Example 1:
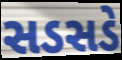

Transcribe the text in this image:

સડસડે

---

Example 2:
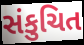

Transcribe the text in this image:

સંકુચિત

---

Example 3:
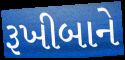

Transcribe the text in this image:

રૂખીબાને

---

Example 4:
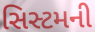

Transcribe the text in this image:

સિસ્ટમની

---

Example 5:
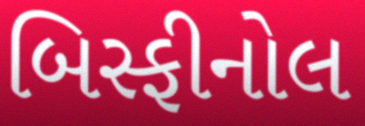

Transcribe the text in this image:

બિસ્ફીનોલ